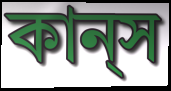
কান্‌স